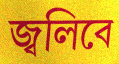
জ্বলিবে